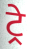
ट्रे